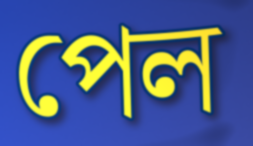
পেল